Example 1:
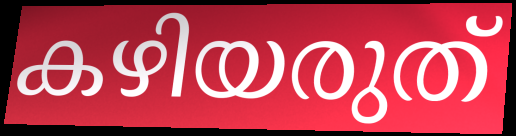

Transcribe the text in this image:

കഴിയരുത്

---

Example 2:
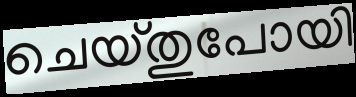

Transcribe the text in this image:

ചെയ്തുപോയി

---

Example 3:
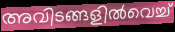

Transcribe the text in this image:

അവിടങ്ങളിൽവെച്ച്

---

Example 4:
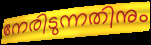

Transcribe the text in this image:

നേരിടുന്നതിനും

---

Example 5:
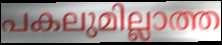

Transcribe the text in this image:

പകലുമില്ലാത്ത